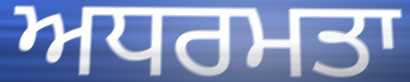
ਅਧਰਮਤਾ